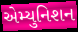
એમ્યુનિશન